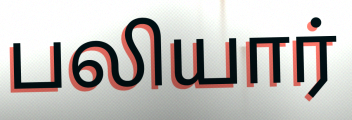
பலியார்